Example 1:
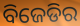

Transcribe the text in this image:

ବିଜେଡିର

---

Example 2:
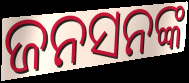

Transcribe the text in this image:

ଜନସନଙ୍କ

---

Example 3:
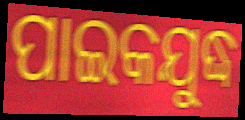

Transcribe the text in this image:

ପାଇକଯୁଦ୍ଧ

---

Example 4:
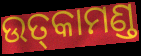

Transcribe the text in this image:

ଉତ୍‌କାମଣ୍ଡ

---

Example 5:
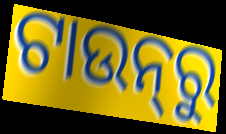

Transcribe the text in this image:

ଟାଉନ୍‌ରୁ